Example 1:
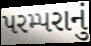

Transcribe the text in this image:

પરમ્પરાનું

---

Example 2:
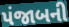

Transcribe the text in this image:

પંજાબની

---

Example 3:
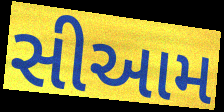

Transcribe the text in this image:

સીઆમ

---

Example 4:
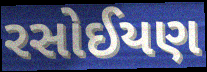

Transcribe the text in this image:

રસોઈયણ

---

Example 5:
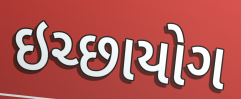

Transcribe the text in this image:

ઇચ્છાયોગ